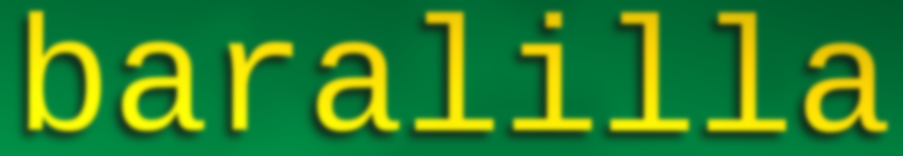
baralilla